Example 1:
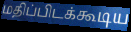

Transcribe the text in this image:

மதிப்பிடக்கூடிய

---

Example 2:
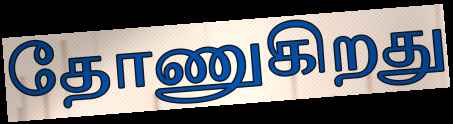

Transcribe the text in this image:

தோணுகிறது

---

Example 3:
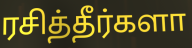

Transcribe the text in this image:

ரசித்தீர்களா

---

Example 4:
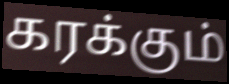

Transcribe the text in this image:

கரக்கும்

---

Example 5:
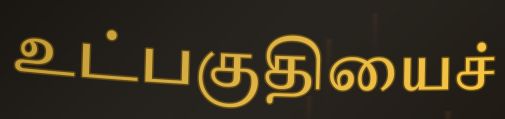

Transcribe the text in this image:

உட்பகுதியைச்